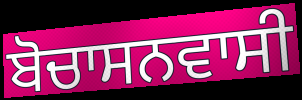
ਬੋਚਾਸਨਵਾਸੀ